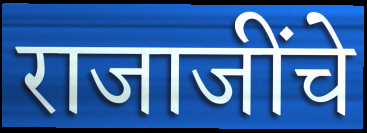
राजाजींचे